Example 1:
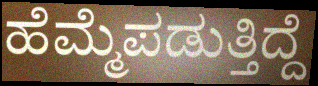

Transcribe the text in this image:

ಹೆಮ್ಮೆಪಡುತ್ತಿದ್ದೆ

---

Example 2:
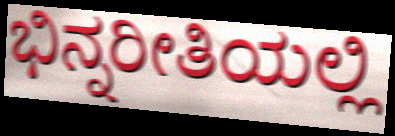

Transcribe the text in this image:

ಭಿನ್ನರೀತಿಯಲ್ಲಿ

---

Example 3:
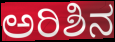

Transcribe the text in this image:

ಅರಿಶಿನ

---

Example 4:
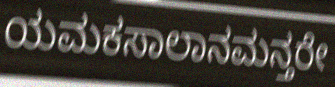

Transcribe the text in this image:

ಯಮಕಸಾಲಾನಮನ್ತರೇ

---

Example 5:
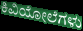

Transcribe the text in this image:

ಕಿವಿಯೋಲೆಗಳು